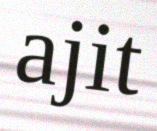
ajit